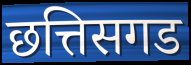
छत्तिसगड